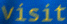
visit